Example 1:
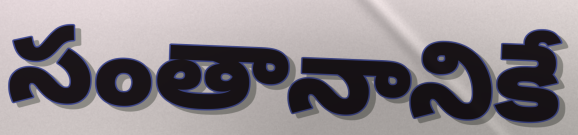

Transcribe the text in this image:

సంతానానికే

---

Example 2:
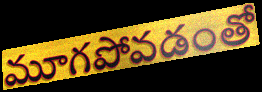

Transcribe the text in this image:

మూగపోవడంతో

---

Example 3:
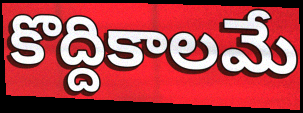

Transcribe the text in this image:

కొద్దికాలమే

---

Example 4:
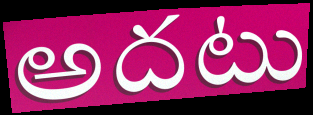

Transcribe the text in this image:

అదటు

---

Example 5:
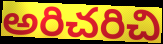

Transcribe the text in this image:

అరిచరిచి